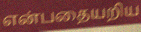
என்பதையறிய